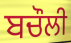
ਬਚੌਲੀ